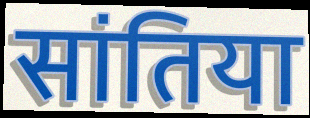
सांतिया